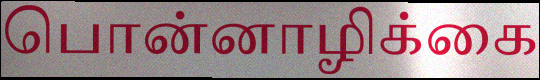
பொன்னாழிக்கை